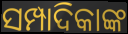
ସମ୍ପାଦିକାଙ୍କ